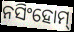
ନସିଂହୋମ୍